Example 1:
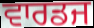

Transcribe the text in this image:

ਵਾਰਡਜ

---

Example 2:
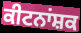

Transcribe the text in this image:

ਕੀਟਨਾਂਸ਼ਕ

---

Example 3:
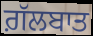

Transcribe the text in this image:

ਗ਼ੱਲਬਾਤ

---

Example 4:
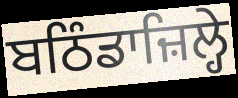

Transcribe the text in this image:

ਬਠਿੰਡਾਜ਼ਿਲ੍ਹੇ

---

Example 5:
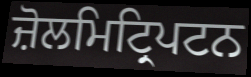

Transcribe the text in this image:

ਜ਼ੋਲਮਿਟ੍ਰਿਪਟਨ